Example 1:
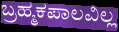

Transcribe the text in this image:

ಬ್ರಹ್ಮಕಪಾಲವಿಲ್ಲ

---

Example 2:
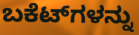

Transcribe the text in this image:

ಬಕೆಟ್‌ಗಳನ್ನು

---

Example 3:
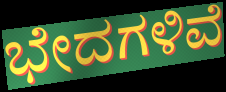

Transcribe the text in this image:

ಭೇದಗಳಿವೆ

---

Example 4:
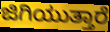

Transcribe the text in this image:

ಜಿಗಿಯುತ್ತಾರೆ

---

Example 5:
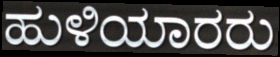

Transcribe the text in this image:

ಹುಳಿಯಾರರು